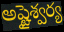
అష్టైశ్వర్య